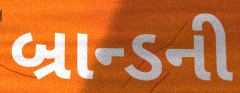
બ્રાન્ડની